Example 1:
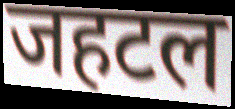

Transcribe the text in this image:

जहटल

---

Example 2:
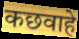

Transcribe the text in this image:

कछवाहे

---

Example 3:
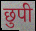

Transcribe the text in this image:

छुपी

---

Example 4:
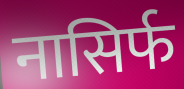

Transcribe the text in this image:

नासिर्फ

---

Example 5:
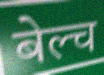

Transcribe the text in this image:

बेल्च